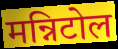
मन्निटोल